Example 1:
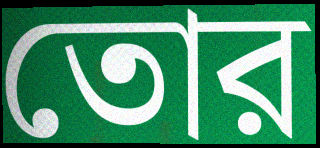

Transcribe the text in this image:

তোর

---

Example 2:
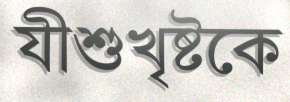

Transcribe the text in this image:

যীশুখৃষ্টকে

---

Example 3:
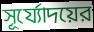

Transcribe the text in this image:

সূর্য্যোদয়ের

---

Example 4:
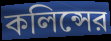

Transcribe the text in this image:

কলিন্সের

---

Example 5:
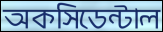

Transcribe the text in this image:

অকসিডেন্টাল